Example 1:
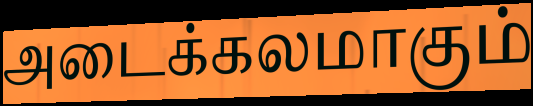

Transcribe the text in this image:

அடைக்கலமாகும்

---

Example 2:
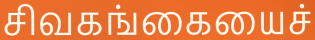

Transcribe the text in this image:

சிவகங்கையைச்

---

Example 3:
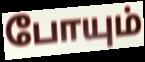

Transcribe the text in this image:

போயும்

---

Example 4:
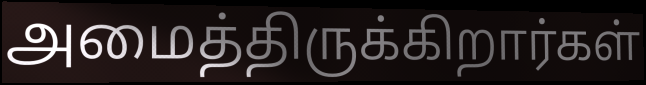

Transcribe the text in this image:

அமைத்திருக்கிறார்கள்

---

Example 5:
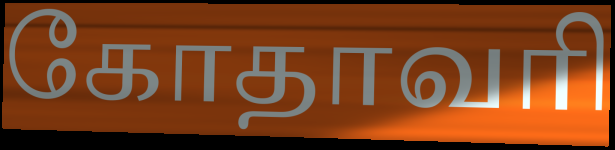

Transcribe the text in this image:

கோதாவரி